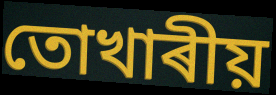
তোখাৰীয়